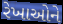
રેખાઓને